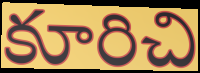
కూరిచి